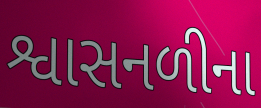
શ્વાસનળીના